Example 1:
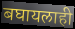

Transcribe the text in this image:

बघायलाही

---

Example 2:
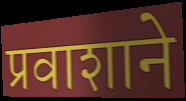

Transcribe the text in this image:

प्रवाशाने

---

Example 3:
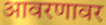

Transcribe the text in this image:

आवरणावर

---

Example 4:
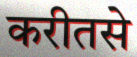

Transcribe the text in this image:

करीतसे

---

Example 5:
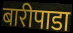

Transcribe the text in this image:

बारीपाडा